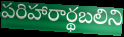
పరిహారార్థబలిని